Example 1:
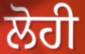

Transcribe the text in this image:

ਲੋਹੀ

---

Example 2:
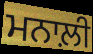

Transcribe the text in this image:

ਮਨਾਲ਼ੀ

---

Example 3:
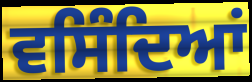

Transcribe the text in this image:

ਵਸਿੰਦਿਆਂ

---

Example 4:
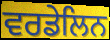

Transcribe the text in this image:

ਵਰਡੇਲਿਨ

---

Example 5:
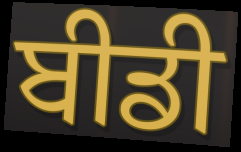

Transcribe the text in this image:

ਬੀਡੀ